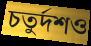
চতুর্দশও